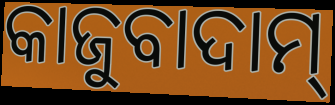
କାଜୁବାଦାମ୍